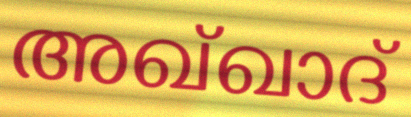
അഖ്ഖാദ്